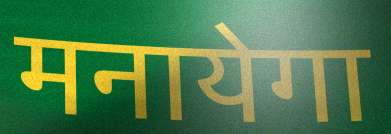
मनायेगा